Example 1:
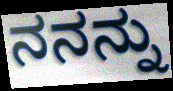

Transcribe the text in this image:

ನನನ್ನು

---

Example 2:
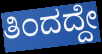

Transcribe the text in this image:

ತಿಂದದ್ದೇ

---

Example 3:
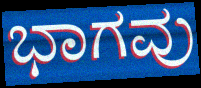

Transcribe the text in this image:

ಭಾಗವು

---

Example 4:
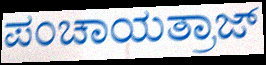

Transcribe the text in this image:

ಪಂಚಾಯತ್ರಾಜ್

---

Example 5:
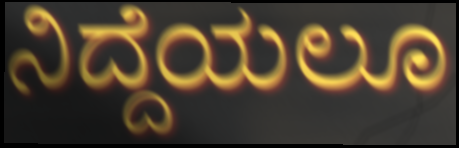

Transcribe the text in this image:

ನಿದ್ದೆಯಲೂ